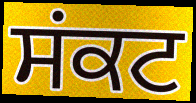
ਸਂਕਟ